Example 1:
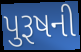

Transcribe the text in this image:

પુરૂષની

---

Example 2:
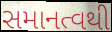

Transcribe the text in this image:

સમાનત્વથી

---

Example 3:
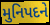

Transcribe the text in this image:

મુનિપદને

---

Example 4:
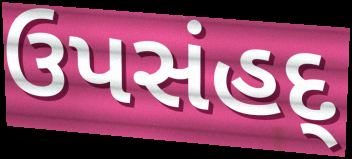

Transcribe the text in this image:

ઉપસંહદ્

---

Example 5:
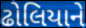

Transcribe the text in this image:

ઢોલિયાને